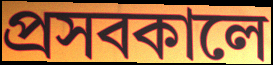
প্রসবকালে